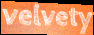
velvety